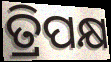
ତ୍ରିପକ୍ଷ